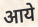
आये